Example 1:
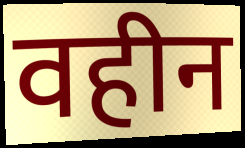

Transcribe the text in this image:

वहीन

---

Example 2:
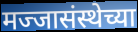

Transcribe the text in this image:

मज्जासंस्थेच्या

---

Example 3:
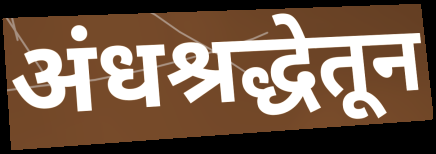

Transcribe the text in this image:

अंधश्रद्धेतून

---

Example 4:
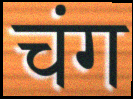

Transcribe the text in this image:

चंग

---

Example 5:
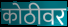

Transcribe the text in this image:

कोठीवर